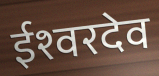
ईश्वरदेव